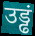
उड्ढं